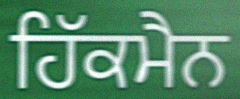
ਹਿੱਕਮੈਨ